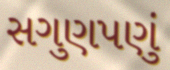
સગુણપણું